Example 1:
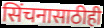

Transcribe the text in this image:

सिंचनासाठीही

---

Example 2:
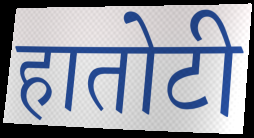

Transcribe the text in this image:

हातोटी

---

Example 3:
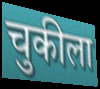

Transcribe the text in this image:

चुकीला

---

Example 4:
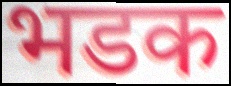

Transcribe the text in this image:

भडक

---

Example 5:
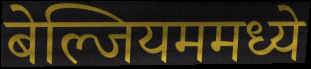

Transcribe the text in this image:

बेल्जियममध्ये